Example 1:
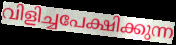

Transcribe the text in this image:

വിളിച്ചപേക്ഷിക്കുന്ന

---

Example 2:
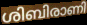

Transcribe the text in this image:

ശിബിരാണി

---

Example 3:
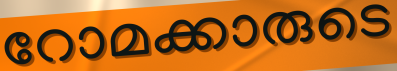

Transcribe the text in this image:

റോമക്കാരുടെ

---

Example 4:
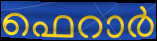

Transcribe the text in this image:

ഫെറാർ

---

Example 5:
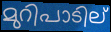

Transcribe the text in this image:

മുറിപാടില്